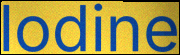
lodine